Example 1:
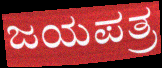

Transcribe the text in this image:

ಜಯಪತ್ರ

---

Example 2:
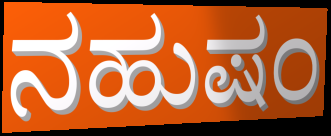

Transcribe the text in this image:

ನಹುಷಂ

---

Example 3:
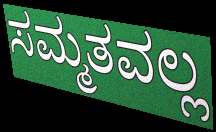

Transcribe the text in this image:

ಸಮ್ಮತವಲ್ಲ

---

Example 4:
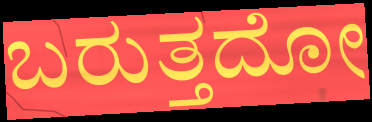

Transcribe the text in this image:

ಬರುತ್ತದೋ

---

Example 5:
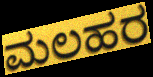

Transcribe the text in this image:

ಮಲಹರ